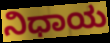
ನಿಧಾಯ